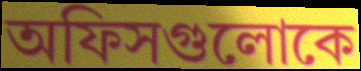
অফিসগুলোকে